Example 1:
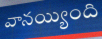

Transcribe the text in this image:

వానయ్యింది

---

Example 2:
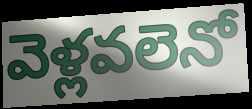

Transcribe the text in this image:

వెళ్లవలెనో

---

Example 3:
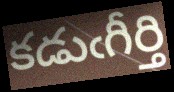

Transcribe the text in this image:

కడుఁగీర్తి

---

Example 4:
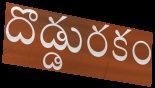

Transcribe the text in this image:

దొడ్డురకం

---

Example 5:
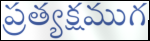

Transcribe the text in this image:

ప్రత్యక్షముగ